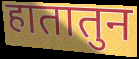
हातातुन